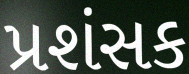
પ્રશંસક